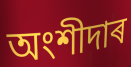
অংশীদাৰ